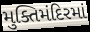
મુક્તિમંદિરમાં